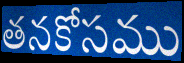
తనకోసము